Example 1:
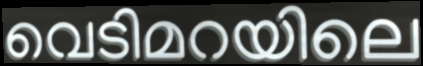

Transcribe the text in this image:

വെടിമറയിലെ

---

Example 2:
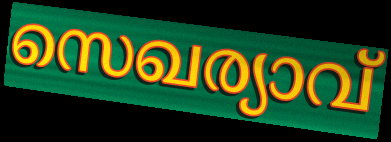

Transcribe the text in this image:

സെഖര്യാവ്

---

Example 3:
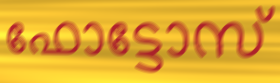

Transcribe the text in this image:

ഫോട്ടോസ്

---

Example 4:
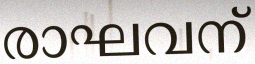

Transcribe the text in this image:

രാഘവന്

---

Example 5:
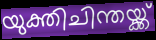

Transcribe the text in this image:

യുക്തിചിന്തയ്ക്ക്